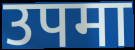
उपमा